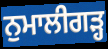
ਨੁਮਾਲੀਗੜ੍ਹ